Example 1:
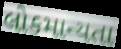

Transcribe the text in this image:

લોકમાન્યતા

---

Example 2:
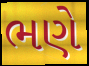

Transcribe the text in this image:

ભણે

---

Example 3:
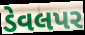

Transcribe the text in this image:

ડેવલપર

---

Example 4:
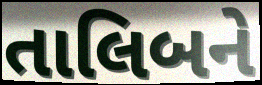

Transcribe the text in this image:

તાલિબને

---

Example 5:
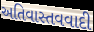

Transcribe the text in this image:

અતિવાસ્તવવાદી